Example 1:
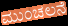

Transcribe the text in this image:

ಮುಂಚಲನೆ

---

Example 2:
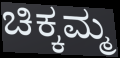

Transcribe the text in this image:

ಚಿಕ್ಕಮ್ಮ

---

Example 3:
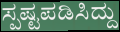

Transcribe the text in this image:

ಸ್ಪಷ್ಟಪಡಿಸಿದ್ದು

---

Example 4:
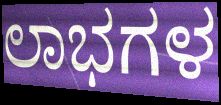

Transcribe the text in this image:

ಲಾಭಗಳ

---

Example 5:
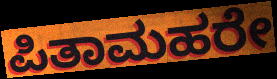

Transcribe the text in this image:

ಪಿತಾಮಹರೇ